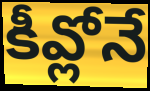
కీవ్లోనే